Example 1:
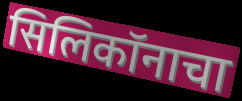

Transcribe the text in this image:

सिलिकॉनाचा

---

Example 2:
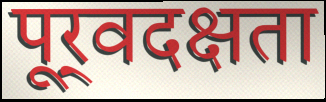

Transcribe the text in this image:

पूर्वदक्षता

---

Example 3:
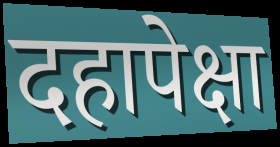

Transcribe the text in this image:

दहापेक्षा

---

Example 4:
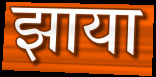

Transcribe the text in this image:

झाया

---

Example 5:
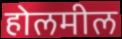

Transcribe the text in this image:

होलमील